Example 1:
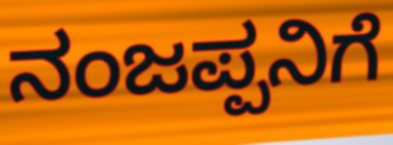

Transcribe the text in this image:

ನಂಜಪ್ಪನಿಗೆ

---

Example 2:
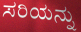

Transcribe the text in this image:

ಸರಿಯನ್ನು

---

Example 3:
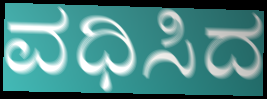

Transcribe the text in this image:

ವಧಿಸಿದ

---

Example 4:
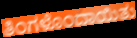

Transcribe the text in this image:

ತಿಂಗಳೊಂದಾಯಿತು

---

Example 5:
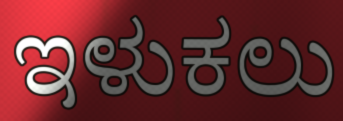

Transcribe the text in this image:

ಇಳುಕಲು